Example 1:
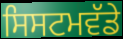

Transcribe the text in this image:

ਸਿਸਟਮਵੱਡੇ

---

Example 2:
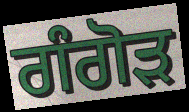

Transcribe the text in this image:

ਗੰਗੋੜ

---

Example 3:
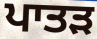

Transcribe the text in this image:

ਪਾਤੜ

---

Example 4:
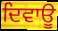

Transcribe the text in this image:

ਦਿਵਾਊ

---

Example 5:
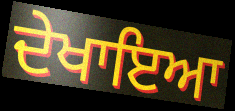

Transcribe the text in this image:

ਦੇਖਾਇਆ